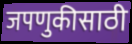
जपणुकीसाठी